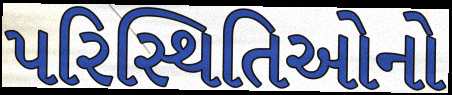
પરિસ્થિતિઓનો